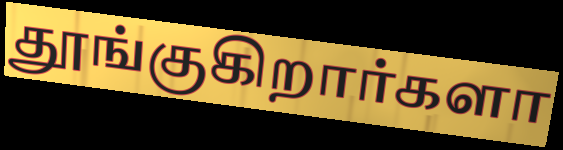
தூங்குகிறார்களா